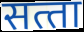
सत्‍ता